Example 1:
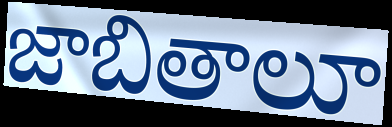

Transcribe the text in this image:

జాబితాలూ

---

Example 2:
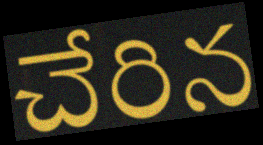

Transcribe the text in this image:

చేరిన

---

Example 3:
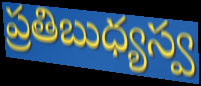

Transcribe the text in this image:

ప్రతిబుధ్యస్వ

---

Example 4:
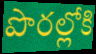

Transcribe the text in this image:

పొరల్లోకి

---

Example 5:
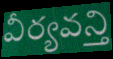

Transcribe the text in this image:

వీర్యవన్తి